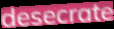
desecrate